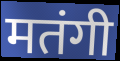
मतंगी